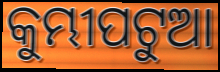
କୁମ୍ଭୀପଟୁଆ